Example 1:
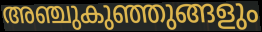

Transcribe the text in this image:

അഞ്ചുകുഞ്ഞുങ്ങളും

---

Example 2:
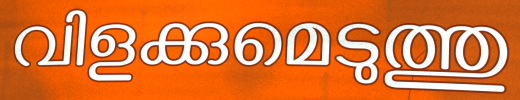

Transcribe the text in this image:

വിളക്കുമെടുത്തു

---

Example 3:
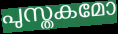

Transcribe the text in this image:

പുസ്തകമോ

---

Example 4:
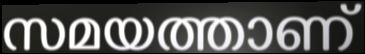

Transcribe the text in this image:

സമയത്താണ്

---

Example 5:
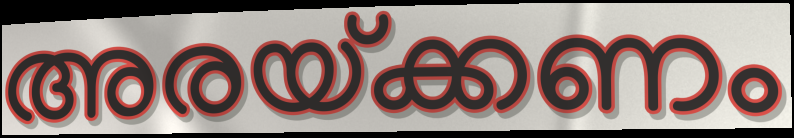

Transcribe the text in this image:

അരയ്‌ക്കണം